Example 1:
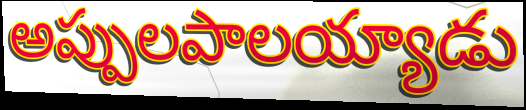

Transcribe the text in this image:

అప్పులపాలయ్యాడు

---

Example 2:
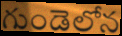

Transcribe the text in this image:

గుండెలోన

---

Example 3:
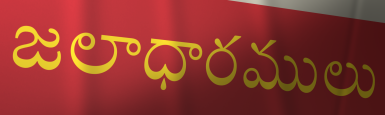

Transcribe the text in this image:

జలాధారములు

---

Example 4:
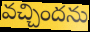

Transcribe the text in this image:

వచ్చిందను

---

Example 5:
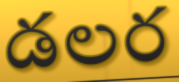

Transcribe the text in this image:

డలర